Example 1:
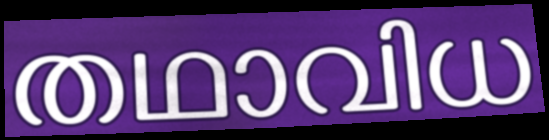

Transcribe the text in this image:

തഥാവിധ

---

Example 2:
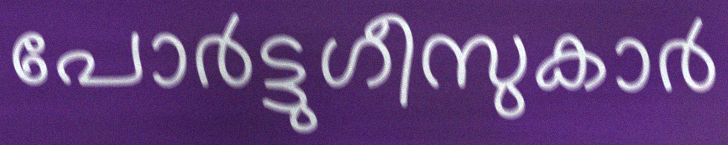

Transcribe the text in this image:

പോർട്ടുഗീസുകാർ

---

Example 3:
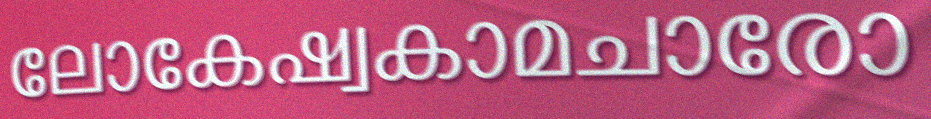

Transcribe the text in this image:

ലോകേഷ്വകാമചാരോ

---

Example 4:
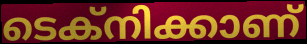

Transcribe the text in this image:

ടെക്നിക്കാണ്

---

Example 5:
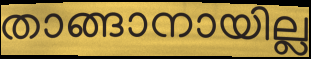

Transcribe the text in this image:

താങ്ങാനായില്ല